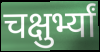
चक्षुर्भ्यां